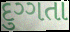
દુગ્ગતા